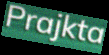
Prajkta